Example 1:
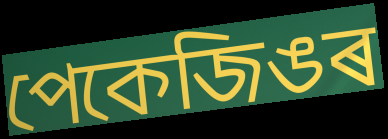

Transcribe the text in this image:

পেকেজিঙৰ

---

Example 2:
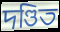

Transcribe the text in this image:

দণ্ডিত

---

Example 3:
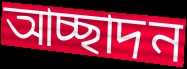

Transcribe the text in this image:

আচ্ছাদন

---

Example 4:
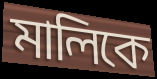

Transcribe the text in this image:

মালিকে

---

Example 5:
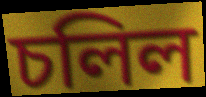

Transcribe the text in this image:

চলিল